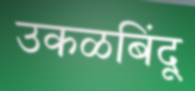
उकळबिंदू